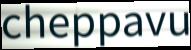
cheppavu